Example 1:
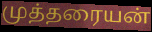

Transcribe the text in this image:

முத்தரையன்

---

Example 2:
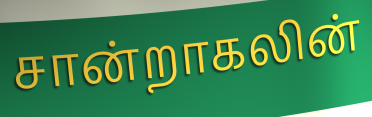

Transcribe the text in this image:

சான்றாகலின்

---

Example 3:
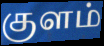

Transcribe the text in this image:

குளம்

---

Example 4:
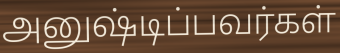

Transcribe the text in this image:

அனுஷ்டிப்பவர்கள்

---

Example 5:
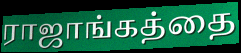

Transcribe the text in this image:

ராஜாங்கத்தை